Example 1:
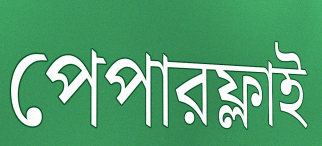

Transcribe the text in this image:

পেপারফ্লাই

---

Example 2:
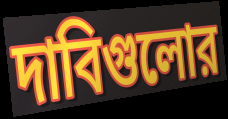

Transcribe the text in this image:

দাবিগুলোর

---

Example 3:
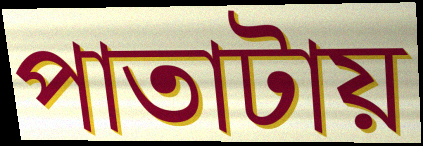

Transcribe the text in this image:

পাতাটায়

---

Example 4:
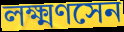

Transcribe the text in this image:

লক্ষ্মণসেন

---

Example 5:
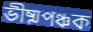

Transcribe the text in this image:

ভীষ্মপঞ্চক